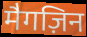
मैगज़िन